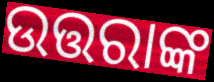
ଉତ୍ତରାଙ୍କ